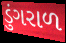
ડુંગરાળ